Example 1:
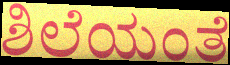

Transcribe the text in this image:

ಶಿಲೆಯಂತೆ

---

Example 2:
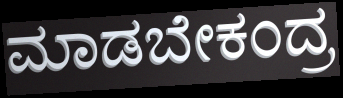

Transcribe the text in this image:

ಮಾಡಬೇಕಂದ್ರ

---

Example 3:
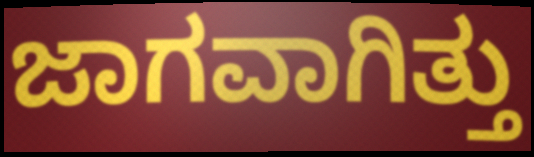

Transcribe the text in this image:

ಜಾಗವಾಗಿತ್ತು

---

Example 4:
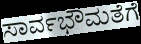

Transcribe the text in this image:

ಸಾರ್ವಭೌಮತೆಗೆ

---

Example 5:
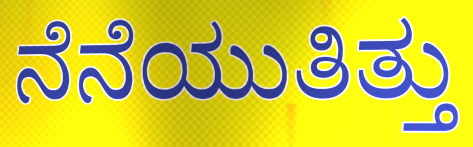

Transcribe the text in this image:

ನೆನೆಯುತಿತ್ತು